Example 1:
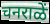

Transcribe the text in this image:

चनराळें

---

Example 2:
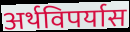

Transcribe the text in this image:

अर्थविपर्यास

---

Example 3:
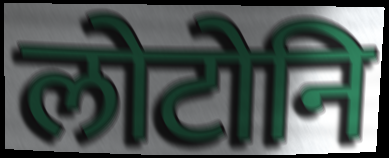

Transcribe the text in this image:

लोटोनि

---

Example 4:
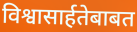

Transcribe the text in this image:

विश्वासार्हतेबाबत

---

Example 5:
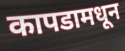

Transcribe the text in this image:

कापडामधून